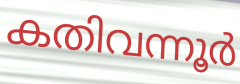
കതിവന്നൂർ